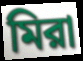
মিরা